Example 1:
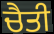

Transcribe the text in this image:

ਚੈਤੀ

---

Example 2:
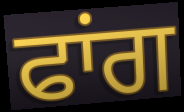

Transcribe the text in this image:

ਫਾਂਗ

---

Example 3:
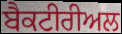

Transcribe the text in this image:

ਬੈਕਟੀਰੀਅਲ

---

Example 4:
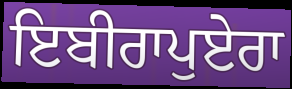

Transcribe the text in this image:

ਇਬੀਰਾਪੁਏਰਾ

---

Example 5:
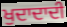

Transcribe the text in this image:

ਖੁਦਾਦਾਦੀ